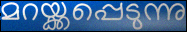
മറയ്ക്കപ്പെടുന്നു